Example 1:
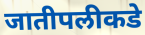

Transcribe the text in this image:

जातीपलीकडे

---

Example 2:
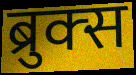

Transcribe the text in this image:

ब्रुक्‍स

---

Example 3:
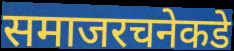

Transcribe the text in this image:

समाजरचनेकडे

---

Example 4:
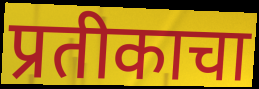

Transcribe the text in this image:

प्रतीकाचा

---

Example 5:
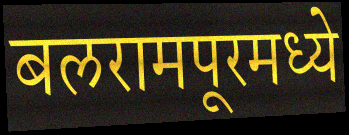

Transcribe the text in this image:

बलरामपूरमध्ये